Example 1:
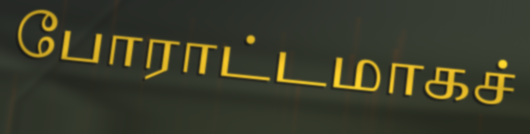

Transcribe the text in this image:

போராட்டமாகச்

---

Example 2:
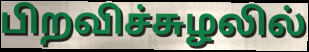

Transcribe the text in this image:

பிறவிச்சுழலில்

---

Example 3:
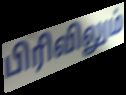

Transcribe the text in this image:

பிரிவிலும்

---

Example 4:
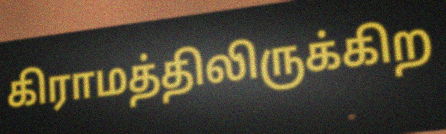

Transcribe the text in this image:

கிராமத்திலிருக்கிற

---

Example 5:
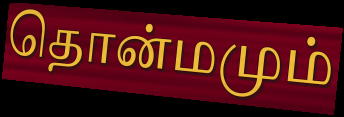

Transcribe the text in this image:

தொன்மமும்